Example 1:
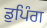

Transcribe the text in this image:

ਡੁਪਿੰਗ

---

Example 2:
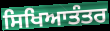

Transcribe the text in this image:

ਸਿਖਿਆਤੰਤਰ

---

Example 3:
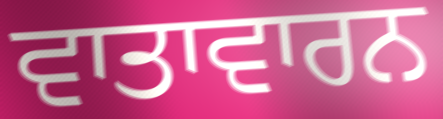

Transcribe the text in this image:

ਵਾਤਾਵਾਰਨ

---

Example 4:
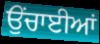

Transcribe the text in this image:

ਉਂਚਾਈਆਂ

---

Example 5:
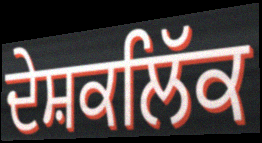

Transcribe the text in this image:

ਦੇਸ਼ਕਲਿੱਕ